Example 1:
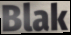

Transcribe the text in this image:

Blak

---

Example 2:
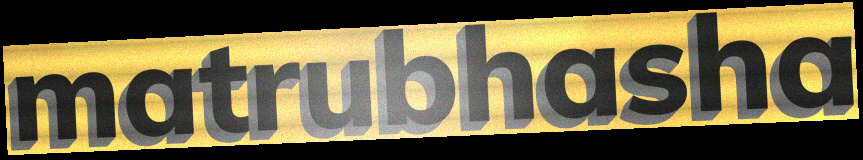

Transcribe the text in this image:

matrubhasha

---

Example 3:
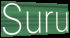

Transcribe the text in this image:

Suru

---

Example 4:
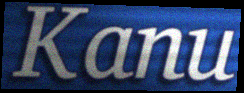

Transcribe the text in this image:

Kanu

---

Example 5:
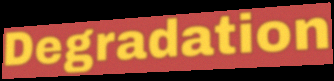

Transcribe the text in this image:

Degradation